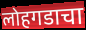
लोहगडाचा